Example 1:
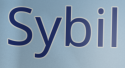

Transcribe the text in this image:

Sybil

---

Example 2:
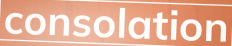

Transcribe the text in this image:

consolation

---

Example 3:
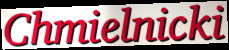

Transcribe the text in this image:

Chmielnicki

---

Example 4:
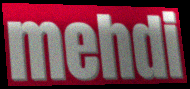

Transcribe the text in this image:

mehdi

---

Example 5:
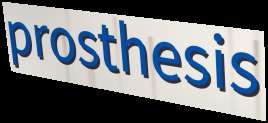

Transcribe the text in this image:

prosthesis